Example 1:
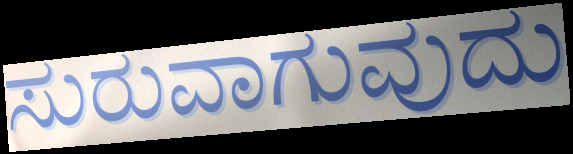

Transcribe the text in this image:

ಸುರುವಾಗುವುದು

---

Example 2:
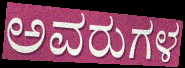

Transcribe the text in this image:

ಅವರುಗಳ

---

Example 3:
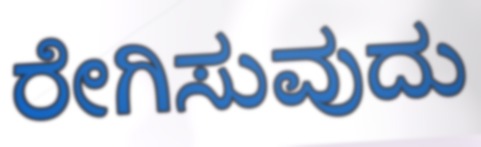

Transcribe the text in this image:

ರೇಗಿಸುವುದು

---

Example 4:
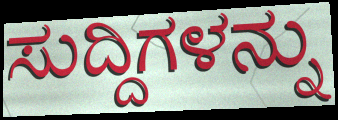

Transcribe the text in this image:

ಸುದ್ದಿಗಳನ್ನು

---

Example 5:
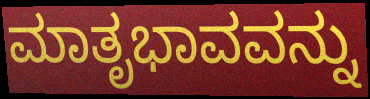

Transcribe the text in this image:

ಮಾತೃಭಾವವನ್ನು